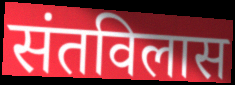
संतविलास